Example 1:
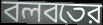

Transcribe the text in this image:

বলবতের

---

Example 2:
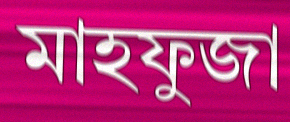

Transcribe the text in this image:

মাহফুজা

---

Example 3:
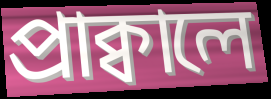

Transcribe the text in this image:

প্রাক্বালে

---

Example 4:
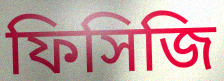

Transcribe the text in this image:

ফিসিজি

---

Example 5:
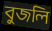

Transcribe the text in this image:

বুজলি